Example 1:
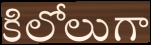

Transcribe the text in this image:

కిలోలుగా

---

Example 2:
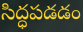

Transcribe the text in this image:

సిద్ధపడడం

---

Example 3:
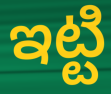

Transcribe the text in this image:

ఇట్టి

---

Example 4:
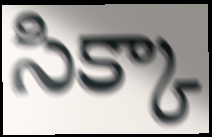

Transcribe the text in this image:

సిక్కా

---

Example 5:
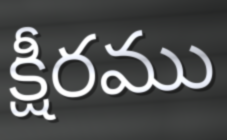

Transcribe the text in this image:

క్షీరము